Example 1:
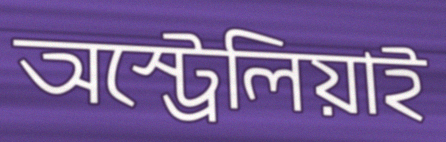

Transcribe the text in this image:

অস্ট্রেলিয়াই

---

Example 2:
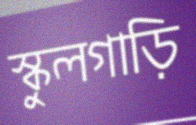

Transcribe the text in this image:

স্কুলগাড়ি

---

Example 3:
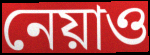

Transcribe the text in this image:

নেয়াও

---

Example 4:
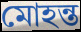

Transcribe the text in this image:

মোহন্ত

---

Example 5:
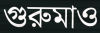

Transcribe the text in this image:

গুরুমাও